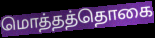
மொத்தத்தொகை